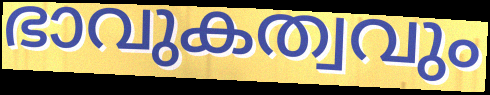
ഭാവുകത്വവും